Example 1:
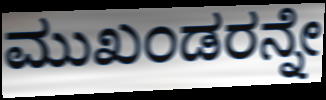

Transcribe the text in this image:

ಮುಖಂಡರನ್ನೇ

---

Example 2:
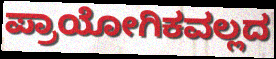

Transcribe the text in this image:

ಪ್ರಾಯೋಗಿಕವಲ್ಲದ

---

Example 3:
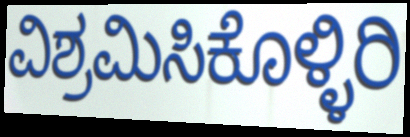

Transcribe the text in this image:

ವಿಶ್ರಮಿಸಿಕೊಳ್ಳಿರಿ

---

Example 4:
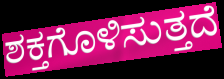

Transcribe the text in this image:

ಶಕ್ತಗೊಳಿಸುತ್ತದೆ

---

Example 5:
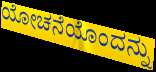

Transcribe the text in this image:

ಯೋಚನೆಯೊಂದನ್ನು